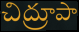
చిద్రూపా